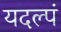
यदल्पं